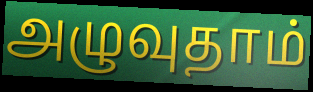
அழுவுதாம்